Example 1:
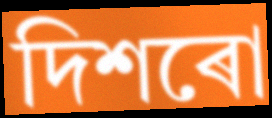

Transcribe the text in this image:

দিশৰো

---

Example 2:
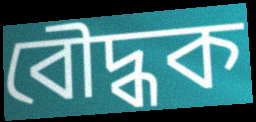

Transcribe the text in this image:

বৌদ্ধক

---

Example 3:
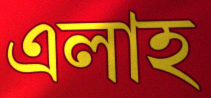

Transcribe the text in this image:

এলাহ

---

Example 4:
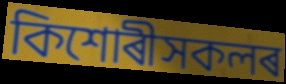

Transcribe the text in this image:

কিশোৰীসকলৰ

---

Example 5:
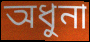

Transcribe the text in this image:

অধুনা